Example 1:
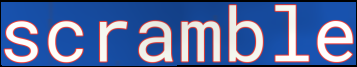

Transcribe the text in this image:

scramble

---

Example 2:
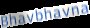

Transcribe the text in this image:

Bhavbhavna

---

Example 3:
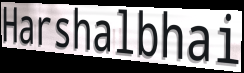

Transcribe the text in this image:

Harshalbhai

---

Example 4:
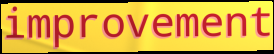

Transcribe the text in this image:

improvement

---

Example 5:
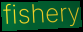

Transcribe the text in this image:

fishery